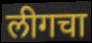
लीगचा